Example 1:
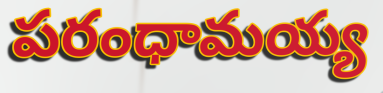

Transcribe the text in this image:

పరంధామయ్య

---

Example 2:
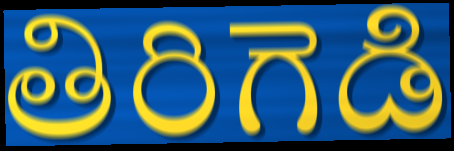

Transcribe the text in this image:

తిరిగెడి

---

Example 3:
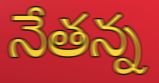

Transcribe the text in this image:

నేతన్న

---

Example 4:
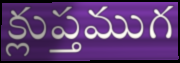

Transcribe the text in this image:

క్లుప్తముగ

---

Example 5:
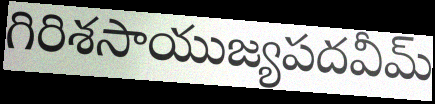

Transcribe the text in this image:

గిరిశసాయుజ్యపదవీమ్